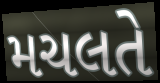
મચલતે